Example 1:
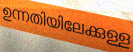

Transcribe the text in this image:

ഉന്നതിയിലേക്കുള്ള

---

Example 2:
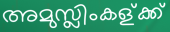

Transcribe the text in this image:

അമുസ്ലിംകള്ക്ക്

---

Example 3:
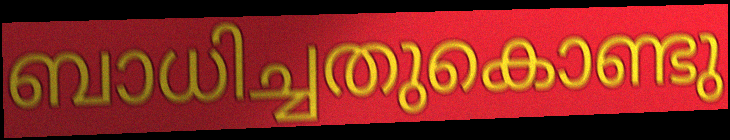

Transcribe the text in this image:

ബാധിച്ചതുകൊണ്ടു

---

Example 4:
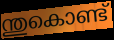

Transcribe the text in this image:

ന്തുകൊണ്ട്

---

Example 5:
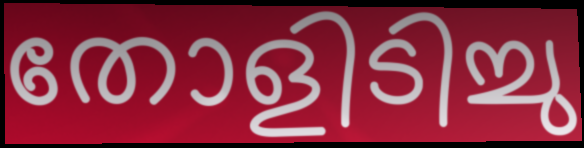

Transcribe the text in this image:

തോളിടിച്ചു